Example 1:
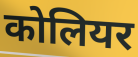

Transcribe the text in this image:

कोलियर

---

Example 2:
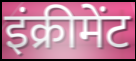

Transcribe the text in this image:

इंक्रीमेंट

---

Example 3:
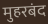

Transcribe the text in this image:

मुहरबंद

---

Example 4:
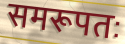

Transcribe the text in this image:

समरूपतः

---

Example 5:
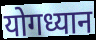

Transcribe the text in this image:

योगध्यान